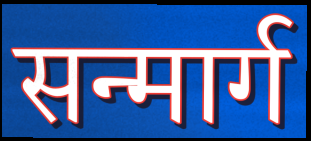
सन्मार्ग